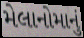
મેલાનોમાનું